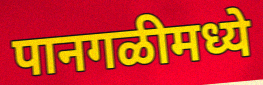
पानगळीमध्ये